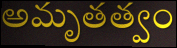
అమృతత్వం